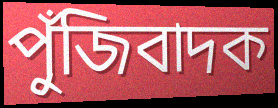
পুঁজিবাদক